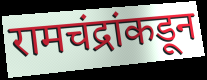
रामचंद्रांकडून